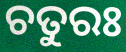
ଚତୁରଃ